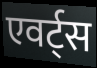
एवर्ट्स